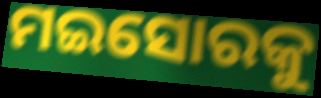
ମଇସୋରକୁ